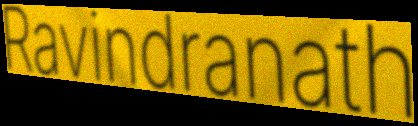
Ravindranath